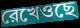
রেখেওছে